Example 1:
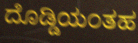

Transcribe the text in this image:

ದೊಡ್ಡಿಯಂತಹ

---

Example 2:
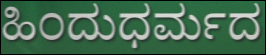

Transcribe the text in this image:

ಹಿಂದುಧರ್ಮದ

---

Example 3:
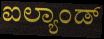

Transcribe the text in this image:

ಐಲ್ಯಾಂಡ್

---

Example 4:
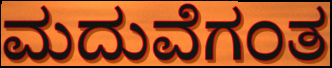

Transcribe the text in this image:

ಮದುವೆಗಂತ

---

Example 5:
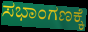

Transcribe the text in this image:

ಸಭಾಂಗಣಕ್ಕೆ